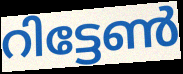
റിട്ടേൺ